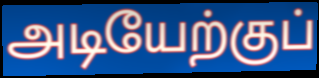
அடியேற்குப்